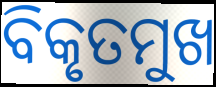
ବିକୃତମୁଖ